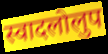
स्वादलोलुप